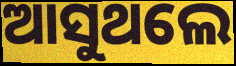
ଆସୁଥଲେ